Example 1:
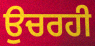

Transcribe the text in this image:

ਉਚਰਹੀ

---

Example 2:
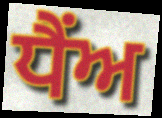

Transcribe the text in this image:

ਧੈਂਅ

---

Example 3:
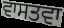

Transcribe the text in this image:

ਵਾਸਤਵਾ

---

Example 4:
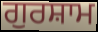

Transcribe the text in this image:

ਗੁਰਸ਼ਾਮ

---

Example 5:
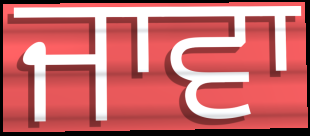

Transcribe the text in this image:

ਜਾਵਾ